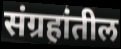
संग्रहांतील